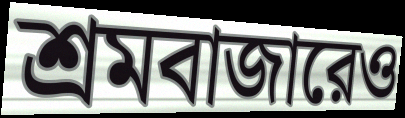
শ্রমবাজারেও